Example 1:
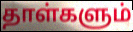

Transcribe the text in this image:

தாள்களும்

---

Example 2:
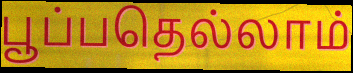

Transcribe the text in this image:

பூப்பதெல்லாம்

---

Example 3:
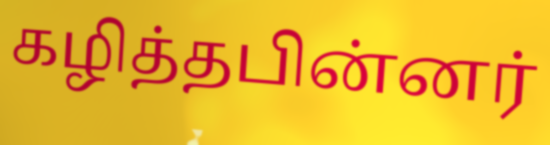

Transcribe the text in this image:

கழித்தபின்னர்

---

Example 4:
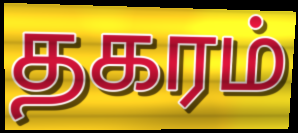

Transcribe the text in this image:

தகரம்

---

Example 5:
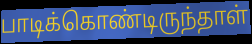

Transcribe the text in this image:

பாடிக்கொண்டிருந்தாள்